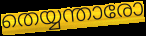
തെയ്യന്താരോ